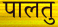
पालतु